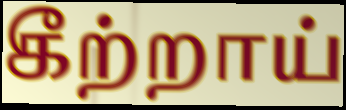
கீற்றாய்